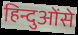
हिन्दुओंसे